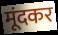
मूंदकर